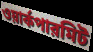
ওয়ার্কপারমিট